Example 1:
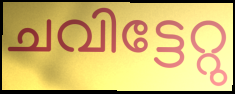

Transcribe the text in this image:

ചവിട്ടേറ്റു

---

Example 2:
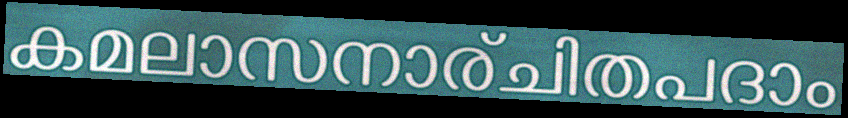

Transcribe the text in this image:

കമലാസനാര്ചിതപദാം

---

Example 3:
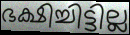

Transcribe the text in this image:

ഭക്ഷിച്ചിട്ടില്ല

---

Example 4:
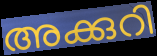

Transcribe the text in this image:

അക്കുറി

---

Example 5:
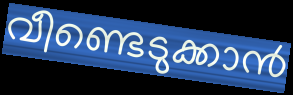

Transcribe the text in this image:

വീണ്ടെടുക്കാൻ